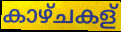
കാഴ്ചകള്